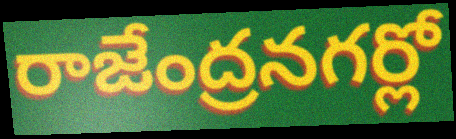
రాజేంద్రనగర్లో